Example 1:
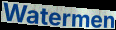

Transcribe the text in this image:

Watermen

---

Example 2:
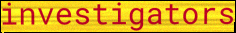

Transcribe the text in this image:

investigators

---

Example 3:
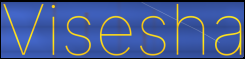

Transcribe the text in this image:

Visesha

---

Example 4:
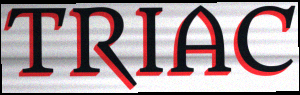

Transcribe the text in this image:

TRIAC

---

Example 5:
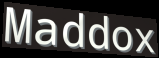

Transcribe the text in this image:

Maddox